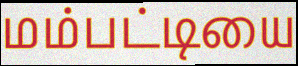
மம்பட்டியை